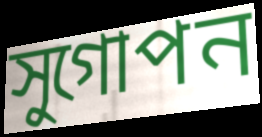
সুগোপন